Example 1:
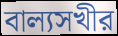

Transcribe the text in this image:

বাল্যসখীর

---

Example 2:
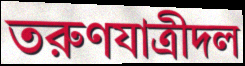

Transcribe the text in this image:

তরুণযাত্রীদল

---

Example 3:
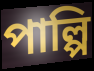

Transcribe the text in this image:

পাল্পি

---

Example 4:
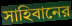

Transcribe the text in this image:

সাহিবানের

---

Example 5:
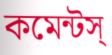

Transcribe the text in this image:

কমেন্টস্